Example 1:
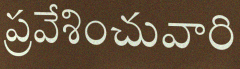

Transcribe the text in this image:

ప్రవేశించువారి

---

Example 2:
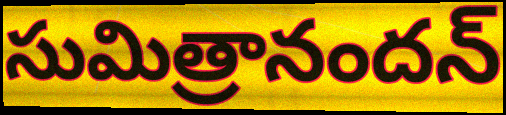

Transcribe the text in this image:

సుమిత్రానందన్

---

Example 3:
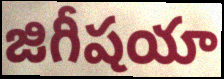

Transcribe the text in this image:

జిగీషయా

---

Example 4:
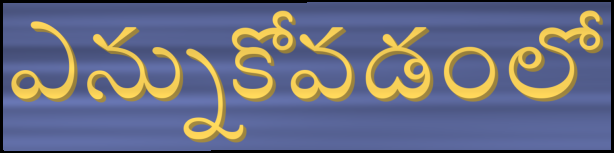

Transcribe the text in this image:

ఎన్నుకోవడంలో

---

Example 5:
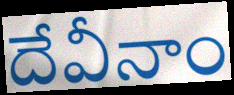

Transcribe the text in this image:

దేవీనాం